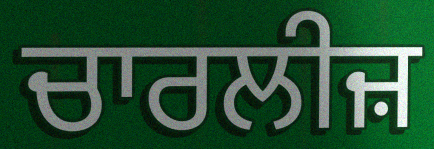
ਚਾਰਲੀਜ਼